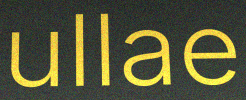
ullae